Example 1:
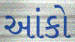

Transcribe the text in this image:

આંકો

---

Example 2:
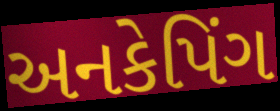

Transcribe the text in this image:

અનકેપિંગ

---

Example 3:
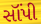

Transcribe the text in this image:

સૉંપી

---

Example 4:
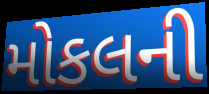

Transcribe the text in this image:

મોકલની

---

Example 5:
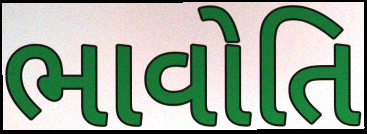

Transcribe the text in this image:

ભાવોતિ